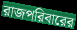
রাজপরিবারের